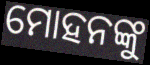
ମୋହନଙ୍କୁ